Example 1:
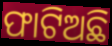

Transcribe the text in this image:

ଫାଟିଅଛି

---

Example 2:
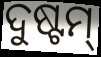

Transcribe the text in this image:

ଦୁଷ୍ଟମ୍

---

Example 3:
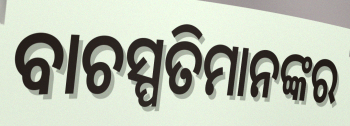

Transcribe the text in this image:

ବାଚସ୍ପତିମାନଙ୍କର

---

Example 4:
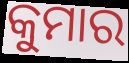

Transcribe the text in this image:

କୁମାର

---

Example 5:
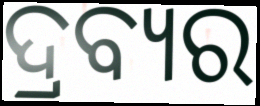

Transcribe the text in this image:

ଦ୍ରବ୍ୟର